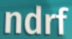
ndrf